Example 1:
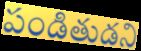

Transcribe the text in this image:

పండితుడని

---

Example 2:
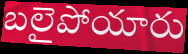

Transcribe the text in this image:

బలైపోయారు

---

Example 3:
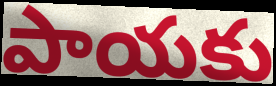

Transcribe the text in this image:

పాయకు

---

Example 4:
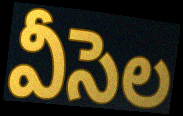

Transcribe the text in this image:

వీసెల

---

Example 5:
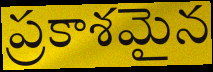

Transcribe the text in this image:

ప్రకాశమైన